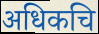
अधिकचि